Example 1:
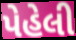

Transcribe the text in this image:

પેહેલી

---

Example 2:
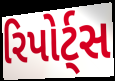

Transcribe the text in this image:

રિપોર્ટ્સ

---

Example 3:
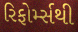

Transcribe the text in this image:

રિફોર્મ્સથી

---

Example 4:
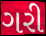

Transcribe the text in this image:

ગરી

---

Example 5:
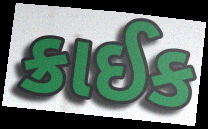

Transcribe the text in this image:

ક્રાઈક